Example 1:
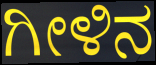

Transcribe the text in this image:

ಗೀಳಿನ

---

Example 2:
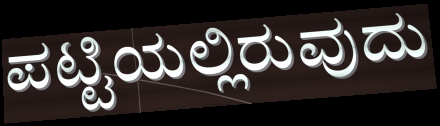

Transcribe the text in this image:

ಪಟ್ಟಿಯಲ್ಲಿರುವುದು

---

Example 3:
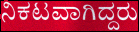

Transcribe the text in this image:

ನಿಕಟವಾಗಿದ್ದರು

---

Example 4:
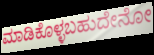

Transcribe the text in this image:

ಮಾಡಿಕೊಳ್ಳಬಹುದೇನೋ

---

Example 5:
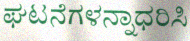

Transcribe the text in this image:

ಘಟನೆಗಳನ್ನಾಧರಿಸಿ